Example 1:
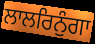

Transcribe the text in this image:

ਲਾਲਰਿਨੁੰਗਾ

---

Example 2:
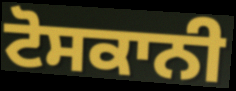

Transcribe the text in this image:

ਟੋਸਕਾਨੀ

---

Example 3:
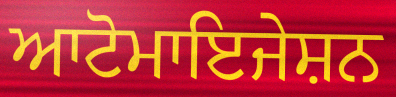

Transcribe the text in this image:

ਆਟੋਮਾਇਜੇਸ਼ਨ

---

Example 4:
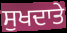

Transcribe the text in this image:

ਸੁਖਦਾਤੇ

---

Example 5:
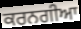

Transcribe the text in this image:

ਕਰਨਗੀਆ